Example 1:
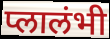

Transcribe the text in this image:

प्लालंभी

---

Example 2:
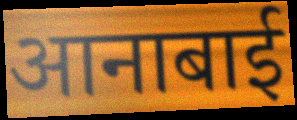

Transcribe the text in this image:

आनाबाई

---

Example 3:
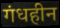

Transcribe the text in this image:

गंधहीन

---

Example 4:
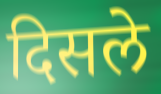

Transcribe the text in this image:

दिसले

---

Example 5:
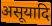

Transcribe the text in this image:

असूयादि